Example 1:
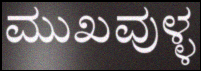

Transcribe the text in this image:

ಮುಖವುಳ್ಳ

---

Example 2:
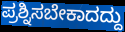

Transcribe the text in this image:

ಪ್ರಶ್ನಿಸಬೇಕಾದದ್ದು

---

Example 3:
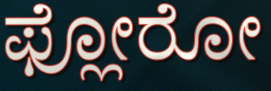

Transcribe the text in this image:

ಫ್ಲೋರೋ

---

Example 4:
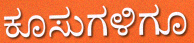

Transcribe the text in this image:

ಕೂಸುಗಳಿಗೂ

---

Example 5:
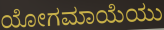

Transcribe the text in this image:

ಯೋಗಮಾಯೆಯು